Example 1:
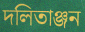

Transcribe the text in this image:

দলিতাঞ্জন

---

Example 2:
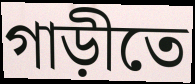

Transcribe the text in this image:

গাড়ীতে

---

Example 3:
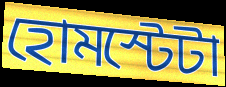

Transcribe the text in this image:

হোমস্টেটা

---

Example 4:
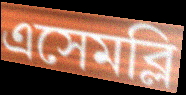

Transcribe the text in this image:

এসেমব্লি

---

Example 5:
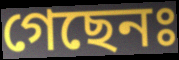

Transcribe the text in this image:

গেছেনঃ